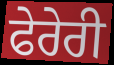
ਫੇਰੇਰੀ